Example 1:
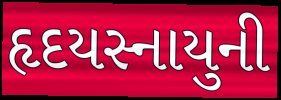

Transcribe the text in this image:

હૃદયસ્નાયુની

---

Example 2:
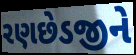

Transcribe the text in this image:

રણછેડજીને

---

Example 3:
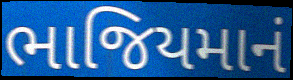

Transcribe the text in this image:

ભાજિયમાનં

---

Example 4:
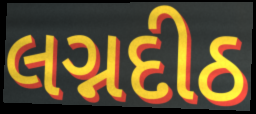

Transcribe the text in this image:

લગ્નદીઠ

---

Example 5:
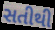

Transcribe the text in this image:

સતીથી